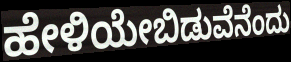
ಹೇಳಿಯೇಬಿಡುವೆನೆಂದು